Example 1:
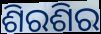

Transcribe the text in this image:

ଶିରଶିର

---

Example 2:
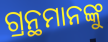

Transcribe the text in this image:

ଗ୍ରନ୍ଥମାନଙ୍କୁ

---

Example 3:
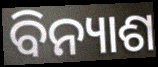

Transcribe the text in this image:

ବିନ୍ୟାଶ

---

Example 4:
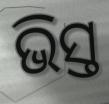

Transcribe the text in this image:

ଭିସ୍ତ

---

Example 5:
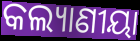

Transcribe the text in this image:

କଲ୍ୟାଣୀୟା